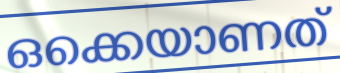
ഒക്കെയാണത്